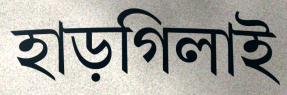
হাড়গিলাই